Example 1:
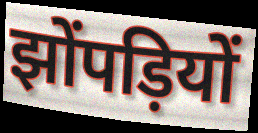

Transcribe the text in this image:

झोंपड़ियों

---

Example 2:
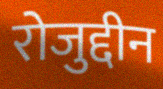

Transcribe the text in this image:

रोजुद्दीन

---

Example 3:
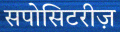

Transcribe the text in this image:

सपोसिटरीज़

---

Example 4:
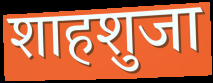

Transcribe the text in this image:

शाहशुजा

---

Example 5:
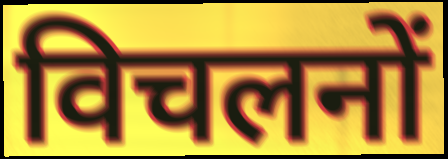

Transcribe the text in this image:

विचलनों